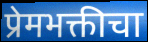
प्रेमभक्तीचा